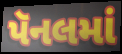
પૅનલમાં